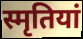
स्मृतियां